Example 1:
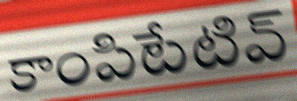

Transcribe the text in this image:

కాంపిటేటివ్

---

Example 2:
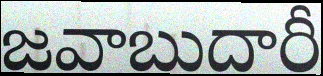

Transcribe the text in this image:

జవాబుదారీ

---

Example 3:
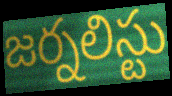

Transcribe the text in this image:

జర్నలిస్టు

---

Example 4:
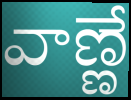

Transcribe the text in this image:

వాణ్ణే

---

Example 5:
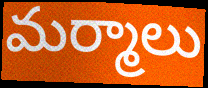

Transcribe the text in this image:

మర్మాలు